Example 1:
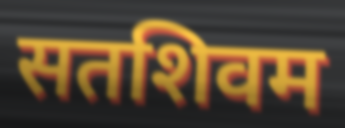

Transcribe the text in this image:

सतशिवम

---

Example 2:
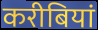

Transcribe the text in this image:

करीबियां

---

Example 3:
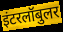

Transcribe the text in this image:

इंटरलॉबुलर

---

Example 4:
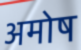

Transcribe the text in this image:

अमोष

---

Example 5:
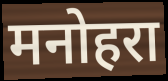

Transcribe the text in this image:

मनोहरा